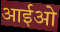
आईओ